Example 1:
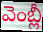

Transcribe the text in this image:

వెంబ్లీ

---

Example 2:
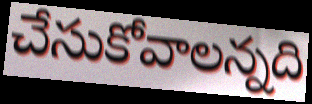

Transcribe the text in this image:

చేసుకోవాలన్నది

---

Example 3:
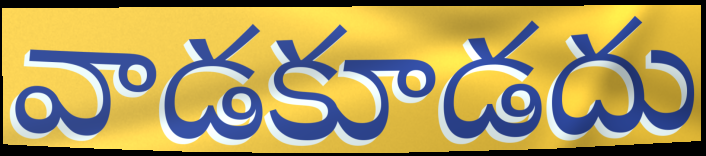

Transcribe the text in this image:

వాడకూడదు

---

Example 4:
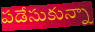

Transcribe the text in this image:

పడేసుకున్నా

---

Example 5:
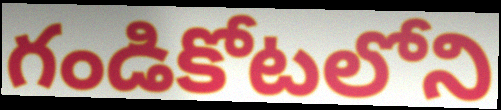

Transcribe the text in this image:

గండికోటలోని